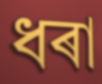
ধৰা